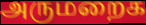
அருமறைக